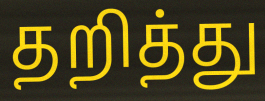
தறித்து